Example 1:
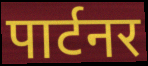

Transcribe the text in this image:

पार्टनर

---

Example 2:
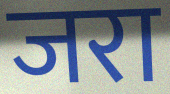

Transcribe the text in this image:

जरा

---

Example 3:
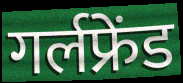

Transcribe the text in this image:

गर्लफ्रेंड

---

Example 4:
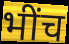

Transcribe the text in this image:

भींच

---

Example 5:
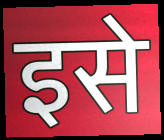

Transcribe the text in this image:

इसे